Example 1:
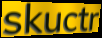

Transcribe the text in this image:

skuctr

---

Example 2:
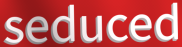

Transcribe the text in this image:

seduced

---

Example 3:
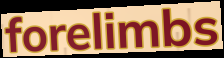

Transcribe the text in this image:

forelimbs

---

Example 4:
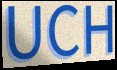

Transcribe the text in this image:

UCH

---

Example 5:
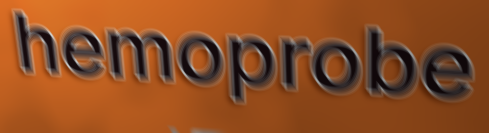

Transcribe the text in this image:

hemoprobe